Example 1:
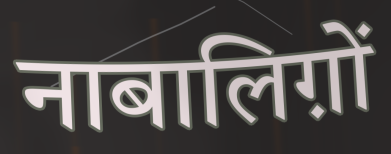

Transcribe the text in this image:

नाबालिग़ों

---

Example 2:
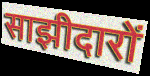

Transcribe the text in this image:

साझीदारों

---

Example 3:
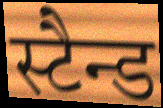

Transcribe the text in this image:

स्टैन्ड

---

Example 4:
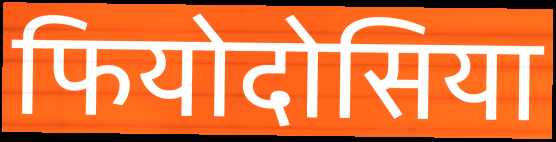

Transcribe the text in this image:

फियोदोसिया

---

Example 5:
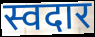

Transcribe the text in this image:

स्वदार